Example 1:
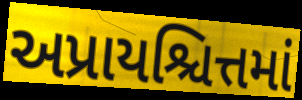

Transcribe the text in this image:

અપ્રાયશ્ચિત્તમાં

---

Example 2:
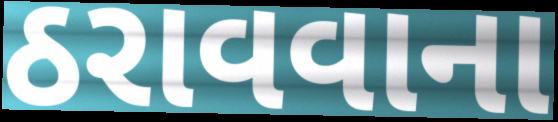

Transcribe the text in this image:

ઠરાવવાના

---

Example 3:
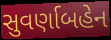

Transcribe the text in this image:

સુવર્ણાબહેન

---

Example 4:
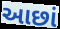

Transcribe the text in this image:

આછાં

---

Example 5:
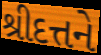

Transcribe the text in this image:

શ્રીદત્તને